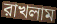
রাখলাম